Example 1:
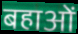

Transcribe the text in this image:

बहाओं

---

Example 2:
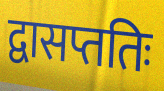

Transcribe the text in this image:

द्वासप्ततिः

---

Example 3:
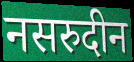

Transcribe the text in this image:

नसरुदीन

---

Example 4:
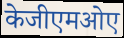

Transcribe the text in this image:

केजीएमओए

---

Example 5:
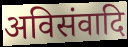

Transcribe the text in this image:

अविसंवादि